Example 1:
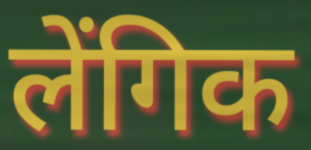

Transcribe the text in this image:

लेंगिक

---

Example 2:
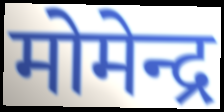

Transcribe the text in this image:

मोमेन्द्र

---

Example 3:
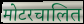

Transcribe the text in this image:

मोटरचालित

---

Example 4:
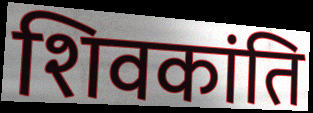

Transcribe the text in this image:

शिवकांति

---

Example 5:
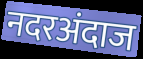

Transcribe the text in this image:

नदरअंदाज